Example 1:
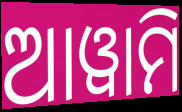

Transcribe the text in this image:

ଆୱାମି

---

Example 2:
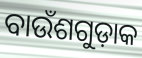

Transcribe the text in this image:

ବାଉଁଶଗୁଡ଼ାକ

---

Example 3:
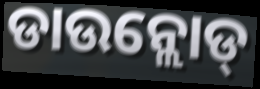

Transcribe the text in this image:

ଡାଉନ୍ଲୋଡ୍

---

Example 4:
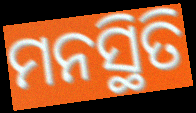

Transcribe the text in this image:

ମନସ୍ଥିତି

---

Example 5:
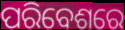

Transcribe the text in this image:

ପରିବେଶରେ